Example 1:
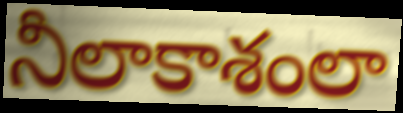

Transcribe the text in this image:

నీలాకాశంలా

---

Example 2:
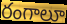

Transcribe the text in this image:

రంగాలూ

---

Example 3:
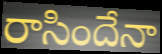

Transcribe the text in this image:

రాసిందేనా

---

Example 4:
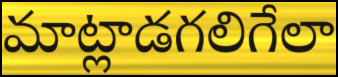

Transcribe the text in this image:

మాట్లాడగలిగేలా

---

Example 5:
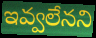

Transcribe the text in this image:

ఇవ్వలేనని